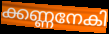
ക്കണ്ണനേകി